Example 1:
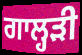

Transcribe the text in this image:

ਗਾਲ੍ਹੜੀ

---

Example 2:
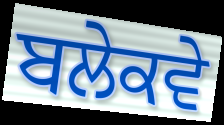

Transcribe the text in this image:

ਬਲੇਕਵੇ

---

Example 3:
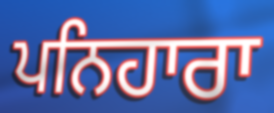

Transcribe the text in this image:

ਪਨਿਹਾਰਾ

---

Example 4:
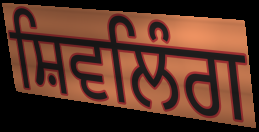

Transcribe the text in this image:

ਸ਼ਿਵਲਿੰਗ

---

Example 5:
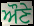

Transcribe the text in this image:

ਔਣੇ